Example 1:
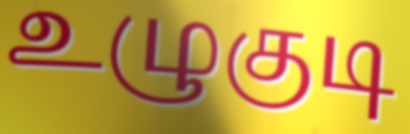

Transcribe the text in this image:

உழுகுடி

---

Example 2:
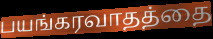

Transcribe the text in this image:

பயங்கரவாதத்தை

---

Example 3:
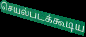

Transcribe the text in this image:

செயல்படக்கூடிய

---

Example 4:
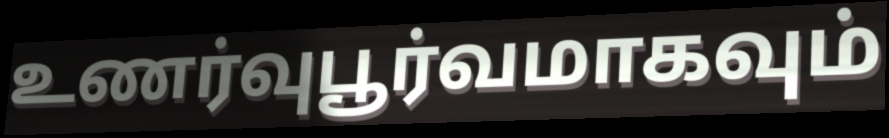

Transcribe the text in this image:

உணர்வுபூர்வமாகவும்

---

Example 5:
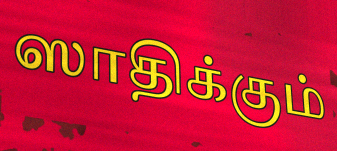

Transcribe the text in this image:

ஸாதிக்கும்